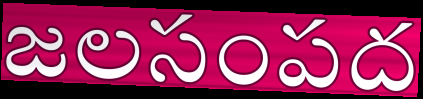
జలసంపద